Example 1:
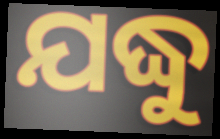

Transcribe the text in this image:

ଯଦ୍ଧୁ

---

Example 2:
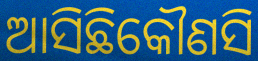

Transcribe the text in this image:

ଆସିଛିକୌଣସି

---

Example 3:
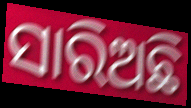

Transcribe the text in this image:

ସାରିଅଛି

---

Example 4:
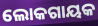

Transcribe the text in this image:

ଲୋକଗାୟକ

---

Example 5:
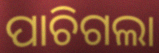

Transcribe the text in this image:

ପାଚିଗଲା